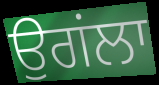
ਉਗਂਲਾ